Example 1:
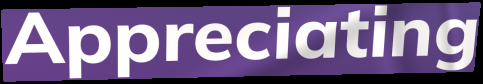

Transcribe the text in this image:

Appreciating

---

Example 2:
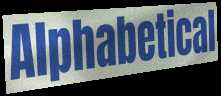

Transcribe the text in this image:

Alphabetical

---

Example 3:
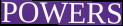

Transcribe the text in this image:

POWERS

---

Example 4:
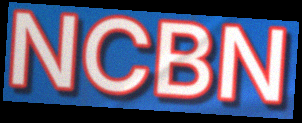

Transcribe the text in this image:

NCBN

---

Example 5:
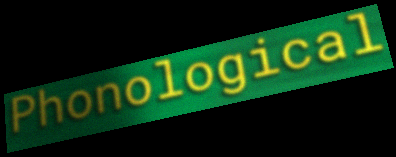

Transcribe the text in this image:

Phonological